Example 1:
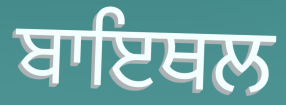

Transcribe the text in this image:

ਬਾਇਥਲ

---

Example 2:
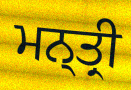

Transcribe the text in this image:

ਮਨ੍ਤ੍ਰੀ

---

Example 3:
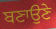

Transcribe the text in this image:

ਬਣਾਉਣੇ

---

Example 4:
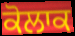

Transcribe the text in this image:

ਕੋਲਾਕ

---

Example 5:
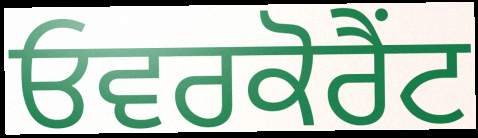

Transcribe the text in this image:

ਓਵਰਕੋਰੈਂਟ